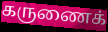
கருணைக்